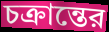
চক্রান্তের